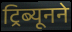
ट्रिब्यूनने